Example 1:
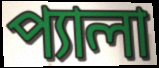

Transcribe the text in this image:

প্যালা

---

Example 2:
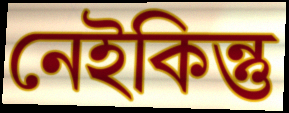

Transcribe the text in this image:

নেইকিন্তু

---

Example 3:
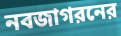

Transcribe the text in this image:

নবজাগরনের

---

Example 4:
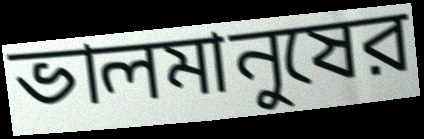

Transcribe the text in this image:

ভালমানুষের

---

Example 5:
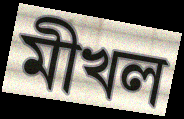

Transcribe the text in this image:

মীখল